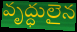
వృద్ధులైన